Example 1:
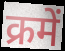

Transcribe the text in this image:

क्रमें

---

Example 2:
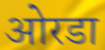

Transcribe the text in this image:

ओरडा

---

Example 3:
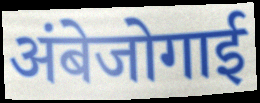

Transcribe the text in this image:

अंबेजोगाई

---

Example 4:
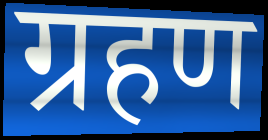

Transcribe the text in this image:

ग्रहण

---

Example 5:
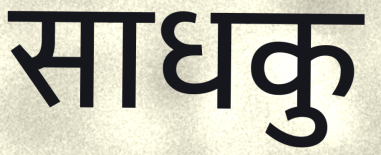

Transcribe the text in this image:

साधकु